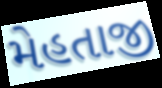
મેહતાજી